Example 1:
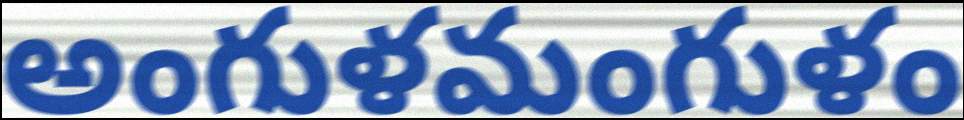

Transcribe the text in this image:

అంగుళమంగుళం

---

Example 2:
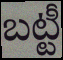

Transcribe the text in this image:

బట్టీ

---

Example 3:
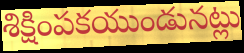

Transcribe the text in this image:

శిక్షింపకయుండునట్లు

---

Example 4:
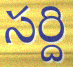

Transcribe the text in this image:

సర్ది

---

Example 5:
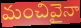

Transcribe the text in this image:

మంచివైనా